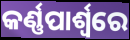
କର୍ଣ୍ଣପାର୍ଶ୍ୱରେ